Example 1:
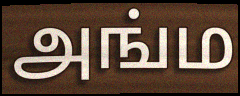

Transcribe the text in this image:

அங்ம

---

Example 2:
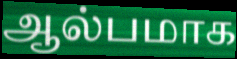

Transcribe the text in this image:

ஆல்பமாக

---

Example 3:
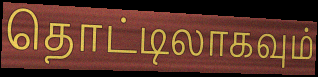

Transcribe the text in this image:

தொட்டிலாகவும்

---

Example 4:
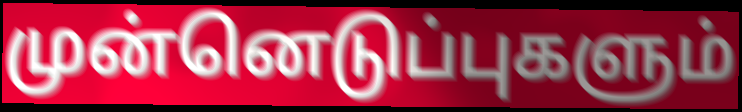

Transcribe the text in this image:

முன்னெடுப்புகளும்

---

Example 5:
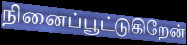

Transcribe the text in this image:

நினைப்பூட்டுகிறேன்